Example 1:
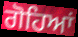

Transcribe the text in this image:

ਗੋਹਿਆਂ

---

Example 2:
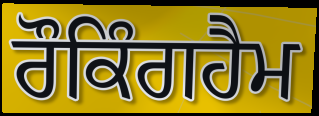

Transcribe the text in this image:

ਰੌਕਿੰਗਹੈਮ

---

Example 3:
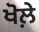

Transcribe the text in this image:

ਖੋਲ਼ੇ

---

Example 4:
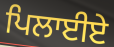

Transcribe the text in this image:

ਪਿਲਾਈਏ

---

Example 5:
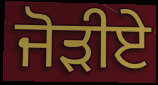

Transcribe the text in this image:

ਜੋੜੀਏ